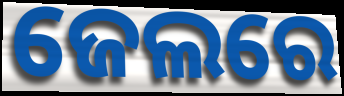
ଜେଲରେ